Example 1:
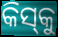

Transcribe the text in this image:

କିସ୍‌କୁ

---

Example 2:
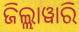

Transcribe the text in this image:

ଜିଲ୍ଲାୱାରି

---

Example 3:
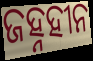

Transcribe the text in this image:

ଜହ୍ନହୀନ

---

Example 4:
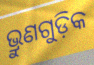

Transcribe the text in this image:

ଭ୍ରୁଣଗୁଡ଼ିକ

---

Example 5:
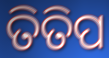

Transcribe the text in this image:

ତିତିପ